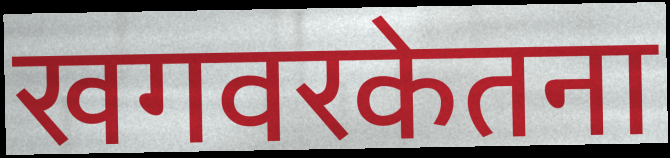
खगवरकेतना